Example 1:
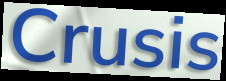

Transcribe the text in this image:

Crusis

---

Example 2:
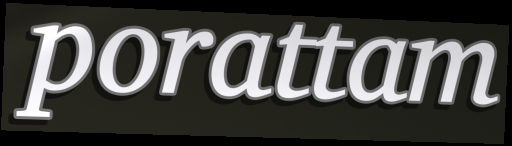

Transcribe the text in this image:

porattam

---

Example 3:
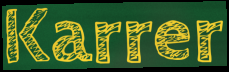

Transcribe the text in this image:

Karrer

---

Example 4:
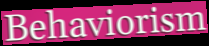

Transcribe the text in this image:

Behaviorism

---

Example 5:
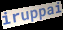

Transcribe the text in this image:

iruppai